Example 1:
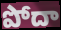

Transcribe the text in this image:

పోదా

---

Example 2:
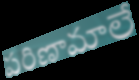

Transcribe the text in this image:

పరిణామాలే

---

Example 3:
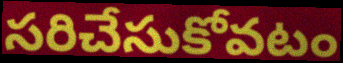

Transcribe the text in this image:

సరిచేసుకోవటం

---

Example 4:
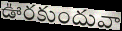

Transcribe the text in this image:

ఊరకుందువా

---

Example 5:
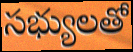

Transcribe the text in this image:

సభ్యులతో